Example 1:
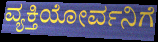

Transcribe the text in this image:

ವ್ಯಕ್ತಿಯೋರ್ವನಿಗೆ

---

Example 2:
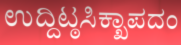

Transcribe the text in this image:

ಉದ್ದಿಟ್ಠಸಿಕ್ಖಾಪದಂ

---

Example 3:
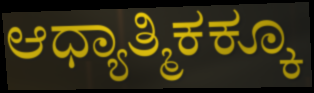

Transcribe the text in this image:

ಆಧ್ಯಾತ್ಮಿಕಕ್ಕೂ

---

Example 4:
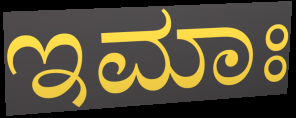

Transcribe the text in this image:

ಇಮಾಃ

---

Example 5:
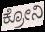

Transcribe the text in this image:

ಕ್ರೋನಿ